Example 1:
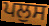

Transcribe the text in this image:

ਪਲੁਸ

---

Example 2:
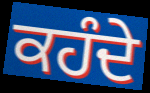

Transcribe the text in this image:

ਕਹੰਦੇ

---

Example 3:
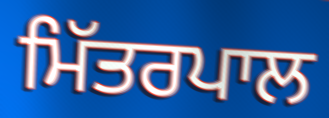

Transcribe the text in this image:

ਮਿੱਤਰਪਾਲ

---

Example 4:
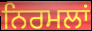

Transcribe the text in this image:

ਨਿਰਮਲਾਂ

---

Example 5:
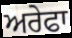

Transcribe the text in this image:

ਅਰੇਫਾ